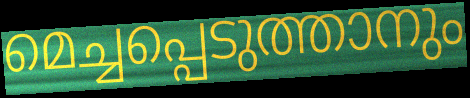
മെച്ചപ്പെടുത്താനും